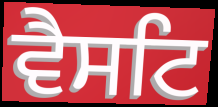
ਵੈਸਟਿ